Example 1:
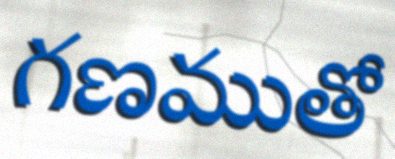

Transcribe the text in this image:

గణముతో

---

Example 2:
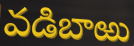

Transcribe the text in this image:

వడిబాఱు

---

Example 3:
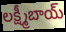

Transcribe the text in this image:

లక్ష్మీబాయ్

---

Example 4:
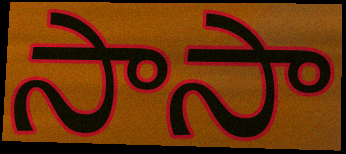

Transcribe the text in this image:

సాసా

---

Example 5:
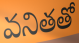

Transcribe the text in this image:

వనితతో